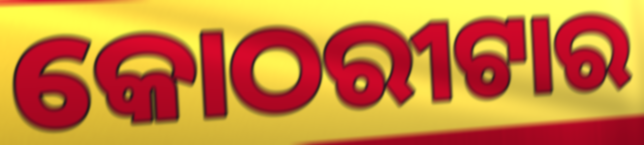
କୋଠରୀଟାର